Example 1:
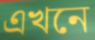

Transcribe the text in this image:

এখনে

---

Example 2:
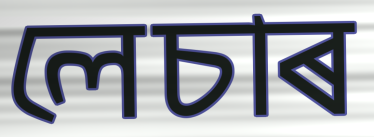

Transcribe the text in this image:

লেচাৰ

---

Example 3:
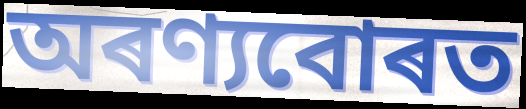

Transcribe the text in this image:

অৰণ্যবোৰত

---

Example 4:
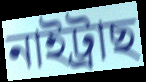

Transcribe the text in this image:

নাইট্ৰাছ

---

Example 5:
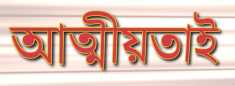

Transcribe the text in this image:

আত্মীয়তাই